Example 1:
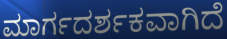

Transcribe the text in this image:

ಮಾರ್ಗದರ್ಶಕವಾಗಿದೆ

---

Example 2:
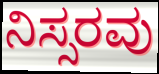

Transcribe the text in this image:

ನಿಸ್ಸರವು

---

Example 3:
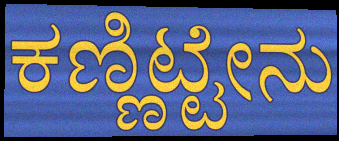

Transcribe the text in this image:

ಕಣ್ಣಿಟ್ಟೇನು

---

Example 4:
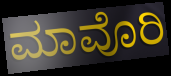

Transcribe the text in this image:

ಮಾವೊರಿ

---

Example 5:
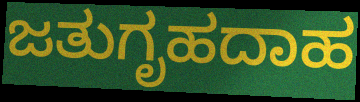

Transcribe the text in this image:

ಜತುಗೃಹದಾಹ